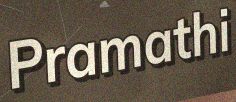
Pramathi